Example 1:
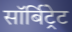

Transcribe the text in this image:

सॉर्बिट्रेट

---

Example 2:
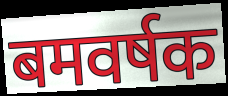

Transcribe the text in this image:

बमवर्षक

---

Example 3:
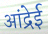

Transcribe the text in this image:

आंद्रेई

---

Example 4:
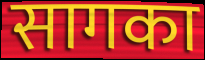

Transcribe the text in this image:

सागका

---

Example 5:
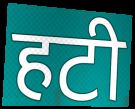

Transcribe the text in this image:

हटी